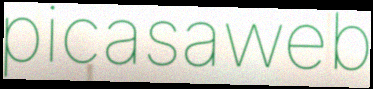
picasaweb